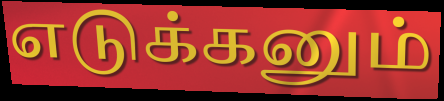
எடுக்கனும்